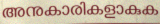
അനുകാരികളാകുക